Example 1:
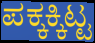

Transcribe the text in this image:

ಪಕ್ಕಕ್ಕಿಟ್ಟ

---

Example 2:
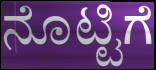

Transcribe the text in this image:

ನೊಟ್ಟಿಗೆ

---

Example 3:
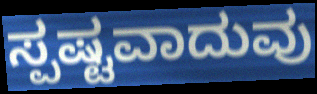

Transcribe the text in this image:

ಸ್ಪಷ್ಟವಾದುವು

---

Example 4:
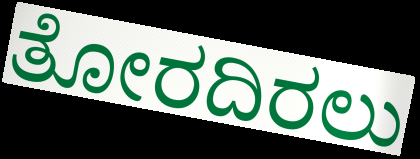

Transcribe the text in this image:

ತೋರದಿರಲು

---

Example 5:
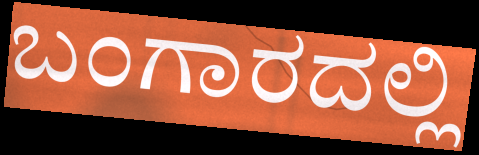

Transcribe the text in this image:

ಬಂಗಾರದಲ್ಲಿ